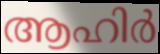
ആഹിർ